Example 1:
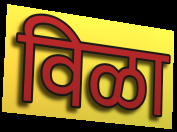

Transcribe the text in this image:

विळा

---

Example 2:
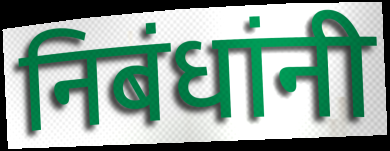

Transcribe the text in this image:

निबंधांनी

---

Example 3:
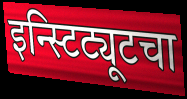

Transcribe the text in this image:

इन्स्टिट्यूटचा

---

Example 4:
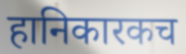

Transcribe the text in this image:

हानिकारकच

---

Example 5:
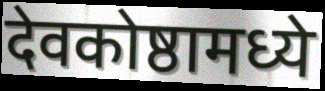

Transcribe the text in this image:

देवकोष्ठामध्ये